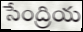
సేంద్రియ